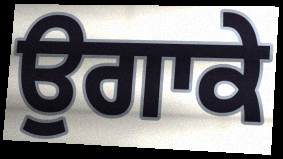
ਉਗਾਕੇ